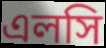
এলসি